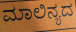
ಮಾಲಿನ್ಯದ